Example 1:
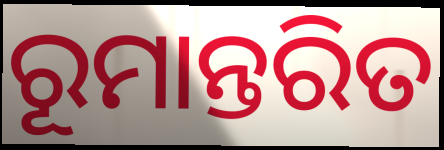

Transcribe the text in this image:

ରୂମାନ୍ତରିତ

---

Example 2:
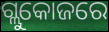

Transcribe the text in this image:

ଗ୍ଲୁକୋଜରେ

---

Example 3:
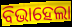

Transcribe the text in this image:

ବିଭାହେଲା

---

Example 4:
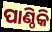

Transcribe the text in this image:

ପାଣ୍ଠିକି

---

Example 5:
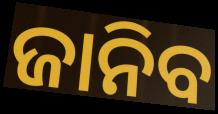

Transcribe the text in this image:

ଜାନିବ